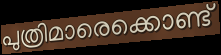
പുത്രിമാരെക്കൊണ്ട്